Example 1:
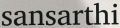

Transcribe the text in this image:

sansarthi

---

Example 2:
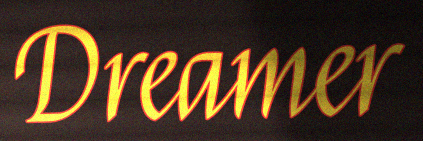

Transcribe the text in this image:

Dreamer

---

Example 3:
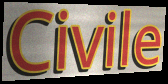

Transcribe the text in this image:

Civile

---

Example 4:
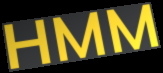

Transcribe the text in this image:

HMM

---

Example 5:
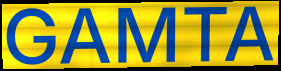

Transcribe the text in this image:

GAMTA